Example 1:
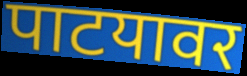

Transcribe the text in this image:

पाटयावर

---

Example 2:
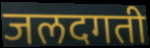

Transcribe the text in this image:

जलदगती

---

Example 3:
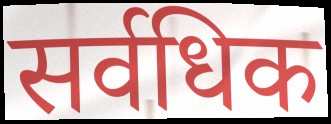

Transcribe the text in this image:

सर्वधिक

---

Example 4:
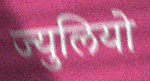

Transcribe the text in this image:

ज्युलियो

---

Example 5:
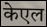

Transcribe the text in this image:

केएल